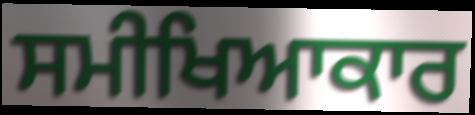
ਸਮੀਖਿਆਕਾਰ